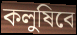
কলুষিবে